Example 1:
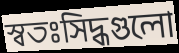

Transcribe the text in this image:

স্বতঃসিদ্ধগুলো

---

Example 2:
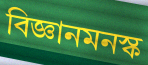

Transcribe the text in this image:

বিজ্ঞানমনস্ক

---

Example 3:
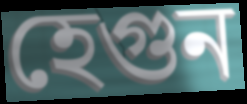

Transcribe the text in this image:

হেগুন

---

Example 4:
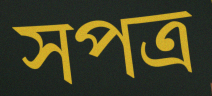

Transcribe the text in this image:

সপত্র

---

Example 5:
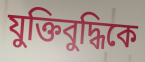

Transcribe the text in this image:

যুক্তিবুদ্ধিকে